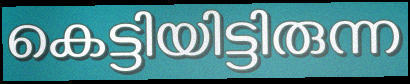
കെട്ടിയിട്ടിരുന്ന